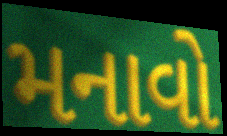
મનાવો